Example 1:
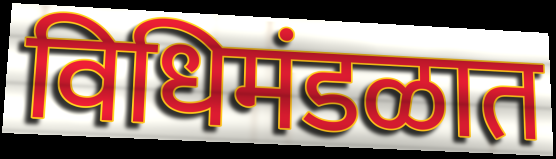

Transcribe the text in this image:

विधिमंडळात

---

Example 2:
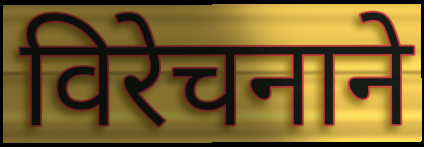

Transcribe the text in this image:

विरेचनाने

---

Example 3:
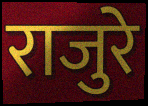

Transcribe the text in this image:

राजुरे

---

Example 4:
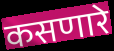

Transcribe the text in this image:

कसणारे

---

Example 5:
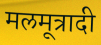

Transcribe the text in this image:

मलमूत्रादी